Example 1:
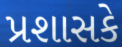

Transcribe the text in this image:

પ્રશાસકે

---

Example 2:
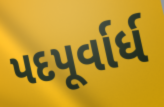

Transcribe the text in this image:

પદપૂર્વાર્ધ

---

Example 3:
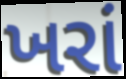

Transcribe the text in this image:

ખરાં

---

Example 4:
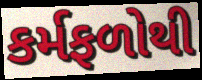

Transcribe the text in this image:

કર્મફળોથી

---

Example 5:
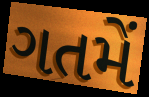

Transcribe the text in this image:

ગતમેં